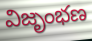
విజృంభణ